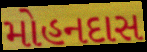
મોહનદાસ